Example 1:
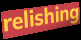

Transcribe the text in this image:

relishing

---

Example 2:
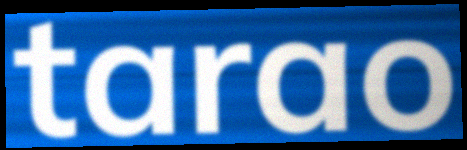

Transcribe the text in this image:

tarao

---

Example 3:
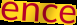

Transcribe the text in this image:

ence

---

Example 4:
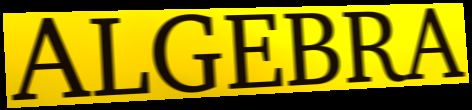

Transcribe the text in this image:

ALGEBRA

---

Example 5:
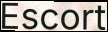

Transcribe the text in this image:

Escort